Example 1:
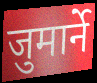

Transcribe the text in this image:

जुमार्ने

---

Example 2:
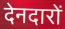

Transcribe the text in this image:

देनदारों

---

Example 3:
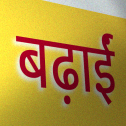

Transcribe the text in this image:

बढ़ाईं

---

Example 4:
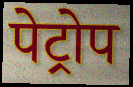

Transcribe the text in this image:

पेट्रोप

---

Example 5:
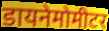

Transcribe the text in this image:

डायनेमोमीटर